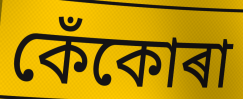
কেঁকোৰা